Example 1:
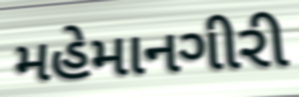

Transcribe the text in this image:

મહેમાનગીરી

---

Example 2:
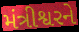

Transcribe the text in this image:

મંત્રીશ્વરને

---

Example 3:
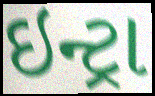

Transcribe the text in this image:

ઇન્ટ્રા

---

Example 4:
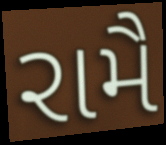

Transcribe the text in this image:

રામૈ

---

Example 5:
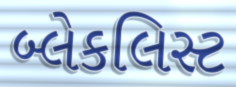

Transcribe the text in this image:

બ્લેકલિસ્ટ